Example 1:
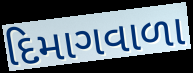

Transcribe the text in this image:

દિમાગવાળા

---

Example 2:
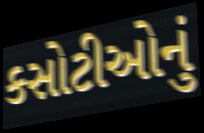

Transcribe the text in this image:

કસોટીઓનું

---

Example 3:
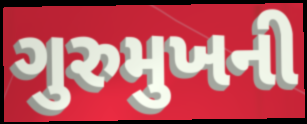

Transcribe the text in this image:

ગુરુમુખની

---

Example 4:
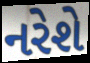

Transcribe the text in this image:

નરેશે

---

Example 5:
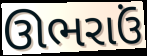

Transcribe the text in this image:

ઊભરાઉં